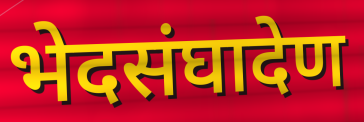
भेदसंघादेण